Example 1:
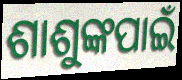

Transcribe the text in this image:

ଶାଶୁଙ୍କପାଇଁ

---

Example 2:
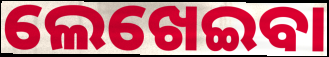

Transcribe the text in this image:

ଲେଖେଇବା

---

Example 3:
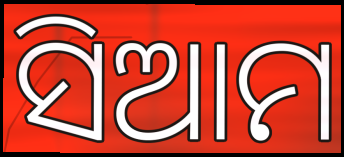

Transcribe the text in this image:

ସିଆମ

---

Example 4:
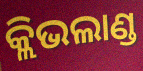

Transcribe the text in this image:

କ୍ଲିଭଲାଣ୍ଡ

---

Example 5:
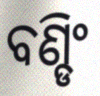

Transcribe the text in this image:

ବଣ୍ଡିଂ